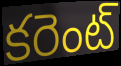
కరెంట్